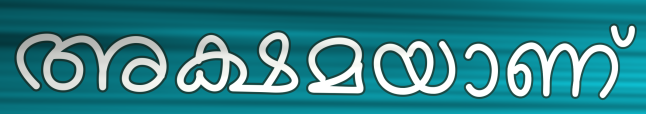
അക്ഷമയാണ്